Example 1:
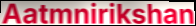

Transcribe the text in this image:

Aatmnirikshan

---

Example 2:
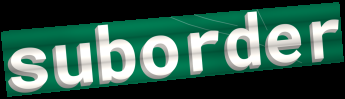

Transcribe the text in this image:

suborder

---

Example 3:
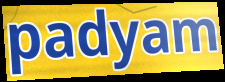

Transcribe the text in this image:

padyam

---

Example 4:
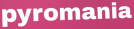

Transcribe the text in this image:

pyromania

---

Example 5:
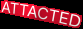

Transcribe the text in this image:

ATTACTED